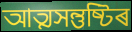
আত্মসন্তুষ্টিৰ